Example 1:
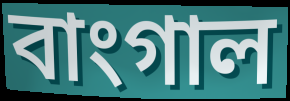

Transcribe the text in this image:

বাংগাল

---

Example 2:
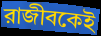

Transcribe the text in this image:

রাজীবকেই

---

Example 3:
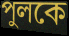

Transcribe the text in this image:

পুলকে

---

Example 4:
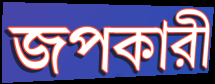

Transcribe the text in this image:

জপকারী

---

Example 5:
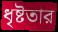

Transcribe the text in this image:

ধৃষ্টতার